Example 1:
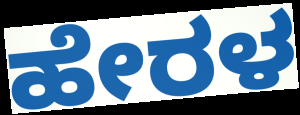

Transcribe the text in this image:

ಹೇರಳ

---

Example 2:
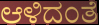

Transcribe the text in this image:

ಆಳಿದಂತೆ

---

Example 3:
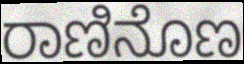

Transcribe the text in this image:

ರಾಣಿನೊಣ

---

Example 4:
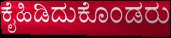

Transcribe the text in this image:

ಕೈಹಿಡಿದುಕೊಂಡರು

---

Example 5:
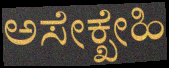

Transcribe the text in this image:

ಅಸೇಕ್ಖೇಹಿ